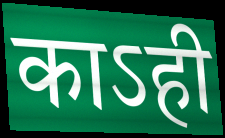
काऽही